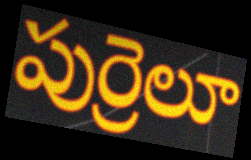
పుర్రెలూ